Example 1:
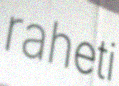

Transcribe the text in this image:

raheti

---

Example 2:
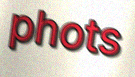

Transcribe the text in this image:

phots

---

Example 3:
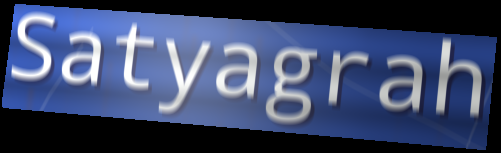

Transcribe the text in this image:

Satyagrah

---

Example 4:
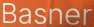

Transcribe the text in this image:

Basner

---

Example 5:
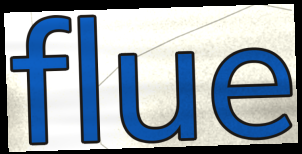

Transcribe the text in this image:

flue